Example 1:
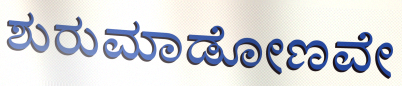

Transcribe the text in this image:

ಶುರುಮಾಡೋಣವೇ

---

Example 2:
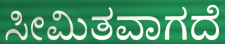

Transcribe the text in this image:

ಸೀಮಿತವಾಗದೆ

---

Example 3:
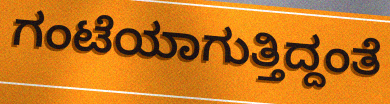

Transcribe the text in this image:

ಗಂಟೆಯಾಗುತ್ತಿದ್ದಂತೆ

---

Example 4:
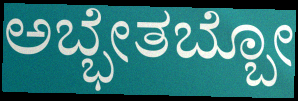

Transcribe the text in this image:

ಅಬ್ಭೇತಬ್ಬೋ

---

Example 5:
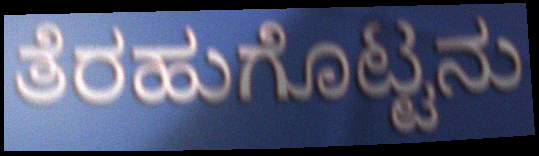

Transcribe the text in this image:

ತೆರಹುಗೊಟ್ಟನು